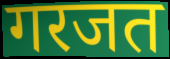
गरजत